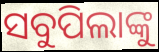
ସବୁପିଲାଙ୍କୁ